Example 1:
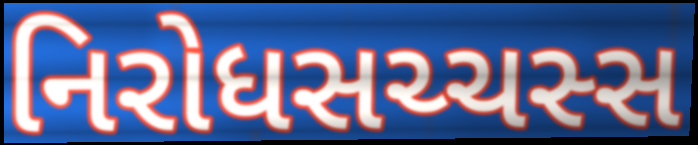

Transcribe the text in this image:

નિરોધસચ્ચસ્સ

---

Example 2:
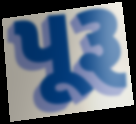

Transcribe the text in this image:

પૂરૂ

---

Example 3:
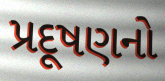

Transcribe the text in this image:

પ્રદૂષણનો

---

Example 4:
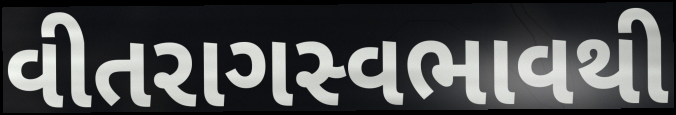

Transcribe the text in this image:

વીતરાગસ્વભાવથી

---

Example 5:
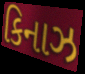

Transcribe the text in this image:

કિનાઝ